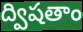
ద్విషతాం